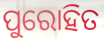
ପୁରୋହିତ